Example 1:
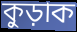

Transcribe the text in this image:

কুড়াক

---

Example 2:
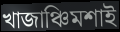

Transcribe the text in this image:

খাজাঞ্চিমশাই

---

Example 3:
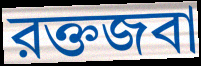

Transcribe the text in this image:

রক্তজবা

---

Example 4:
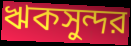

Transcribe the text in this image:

ঋকসুন্দর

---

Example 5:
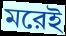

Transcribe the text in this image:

মরেই